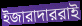
ইজারাদাররাই